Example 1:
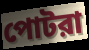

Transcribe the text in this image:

পোটরা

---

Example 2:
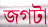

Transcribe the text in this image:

জগটা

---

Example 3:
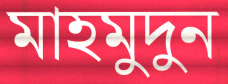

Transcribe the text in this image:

মাহমুদুন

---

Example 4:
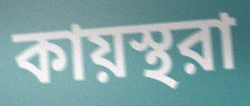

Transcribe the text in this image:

কায়স্থরা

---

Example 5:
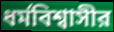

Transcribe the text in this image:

ধর্মবিশ্বাসীর